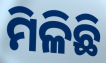
ମିଳିଛି